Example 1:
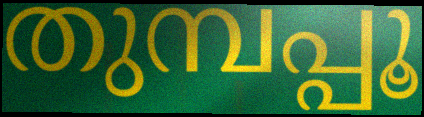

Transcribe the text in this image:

തുമ്പപ്പൂ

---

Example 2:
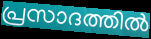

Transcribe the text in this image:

പ്രസാദത്തിൽ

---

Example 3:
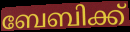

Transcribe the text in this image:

ബേബിക്ക്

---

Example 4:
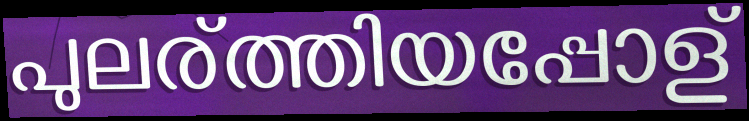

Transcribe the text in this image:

പുലര്ത്തിയപ്പോള്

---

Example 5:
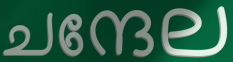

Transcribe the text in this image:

ചന്ദേല